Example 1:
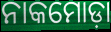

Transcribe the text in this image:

ନାକମୋଡ଼ା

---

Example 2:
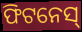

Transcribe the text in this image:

ଫିଟନେସ୍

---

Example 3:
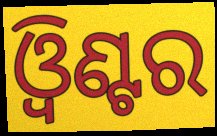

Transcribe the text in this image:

ଓ୍ଵିଣ୍ଟର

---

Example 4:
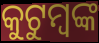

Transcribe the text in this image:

କୁଟୁମ୍ବଙ୍କ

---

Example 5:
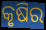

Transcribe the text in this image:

କୃଷିର